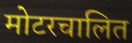
मोटरचालित